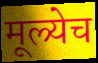
मूल्येच